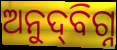
ଅନୁଦ୍‌ବିଗ୍ନ